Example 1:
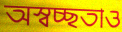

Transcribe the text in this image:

অস্বচ্ছতাও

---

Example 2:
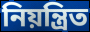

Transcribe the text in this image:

নিয়ন্ত্রিত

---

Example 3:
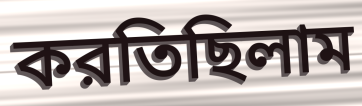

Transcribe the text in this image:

করতিছিলাম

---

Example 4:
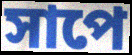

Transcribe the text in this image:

সাপে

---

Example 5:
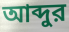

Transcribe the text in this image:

আব্দুর